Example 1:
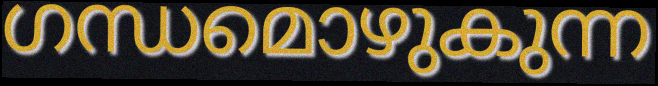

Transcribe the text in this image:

ഗന്ധമൊഴുകുന്ന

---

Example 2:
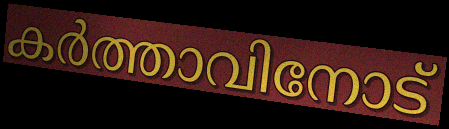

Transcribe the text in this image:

കർത്താവിനോട്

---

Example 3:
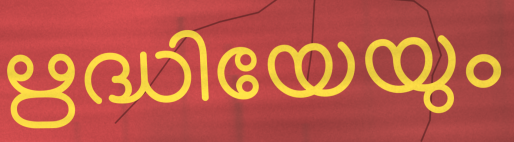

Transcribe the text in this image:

ഋദ്ധിയേയും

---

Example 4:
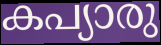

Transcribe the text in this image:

കപ്യാരു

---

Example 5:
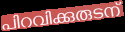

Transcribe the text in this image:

പിറവിക്കുരുടന്